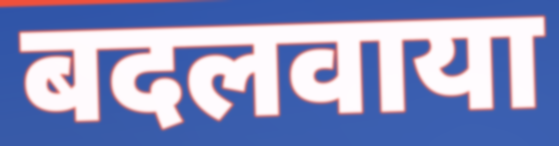
बदलवाया